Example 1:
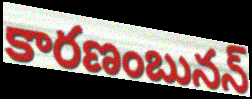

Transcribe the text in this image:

కారణంబునన్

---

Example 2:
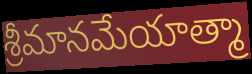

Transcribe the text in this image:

శ్రీమానమేయాత్మా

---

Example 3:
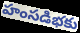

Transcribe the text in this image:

హంసడిభకు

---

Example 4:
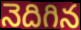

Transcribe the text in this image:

నెదిగిన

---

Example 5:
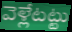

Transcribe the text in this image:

వెళ్లేటట్టు